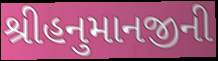
શ્રીહનુમાનજીની